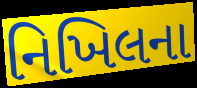
નિખિલના